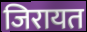
जिरायत